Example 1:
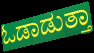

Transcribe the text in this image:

ಓಡಾಡುತ್ತಾ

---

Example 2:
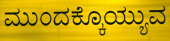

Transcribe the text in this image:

ಮುಂದಕ್ಕೊಯ್ಯುವ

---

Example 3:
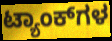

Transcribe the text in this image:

ಟ್ಯಾಂಕ್‌ಗಳ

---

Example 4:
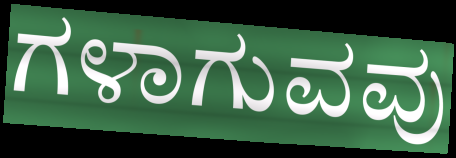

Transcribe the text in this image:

ಗಳಾಗುವವು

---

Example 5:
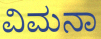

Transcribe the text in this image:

ವಿಮನಾ